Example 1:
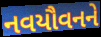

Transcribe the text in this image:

નવયૌવનને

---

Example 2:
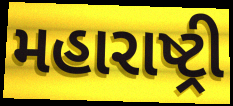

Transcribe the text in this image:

મહારાષ્ટ્રી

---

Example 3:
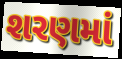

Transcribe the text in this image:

શરણમાં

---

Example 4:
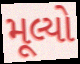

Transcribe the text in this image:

મૂલ્યો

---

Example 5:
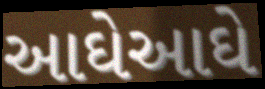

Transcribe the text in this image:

આઘેઆઘે